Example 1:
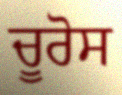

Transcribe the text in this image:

ਚੂਰੋਸ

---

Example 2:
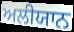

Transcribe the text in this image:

ਅਲੀਯਾਨ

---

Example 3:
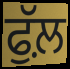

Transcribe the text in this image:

ਫੁੱਲ਼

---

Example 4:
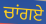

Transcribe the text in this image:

ਚਾਂਗਏ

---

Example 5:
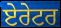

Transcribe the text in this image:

ਏਰੇਟਰ